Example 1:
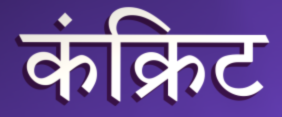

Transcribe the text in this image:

कंक्रिट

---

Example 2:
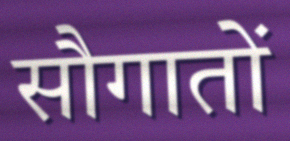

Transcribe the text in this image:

सौगातों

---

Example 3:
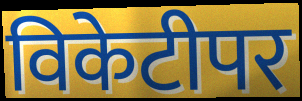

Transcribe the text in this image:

विकेटीपर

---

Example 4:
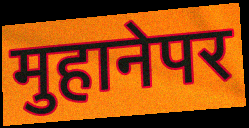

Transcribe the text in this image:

मुहानेपर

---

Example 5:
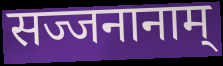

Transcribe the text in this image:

सज्जनानाम्